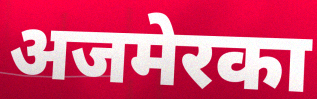
अजमेरका